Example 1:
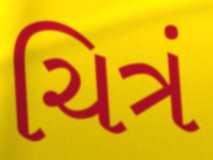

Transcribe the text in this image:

ચિત્રં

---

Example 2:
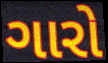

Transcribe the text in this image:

ગારો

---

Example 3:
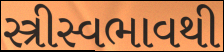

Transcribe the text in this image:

સ્ત્રીસ્વભાવથી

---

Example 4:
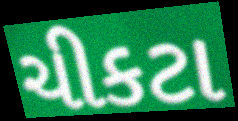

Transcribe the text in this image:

ચીકટા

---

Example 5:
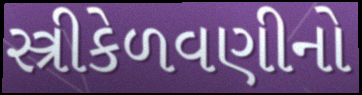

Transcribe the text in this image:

સ્ત્રીકેળવણીનો